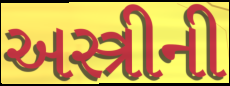
અસ્ત્રીની